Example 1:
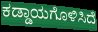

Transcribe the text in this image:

ಕಡ್ಡಾಯಗೊಳಿಸಿದೆ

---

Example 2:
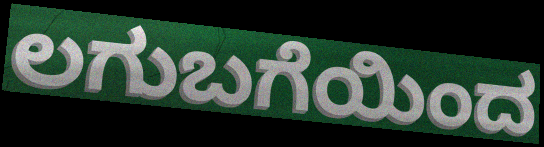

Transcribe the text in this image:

ಲಗುಬಗೆಯಿಂದ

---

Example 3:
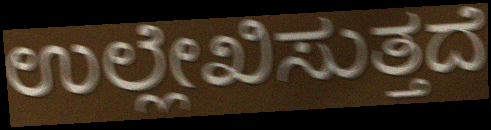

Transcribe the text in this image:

ಉಲ್ಲೇಖಿಸುತ್ತದೆ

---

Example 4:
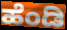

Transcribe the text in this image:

ಹೆಂಡಿ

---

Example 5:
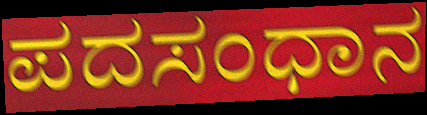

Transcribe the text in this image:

ಪದಸಂಧಾನ